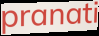
pranati